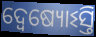
ଦ୍ୱେଷ୍ୟୋଽସ୍ତି